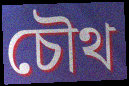
চৌথ